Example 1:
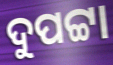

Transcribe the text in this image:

ଦୁପଟ୍ଟା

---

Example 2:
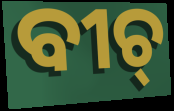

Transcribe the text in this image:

ବୀଚ୍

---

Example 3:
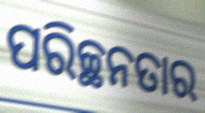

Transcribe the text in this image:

ପରିଚ୍ଛନତାର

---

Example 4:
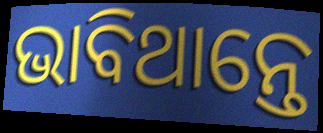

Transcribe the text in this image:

ଭାବିଥାନ୍ତେ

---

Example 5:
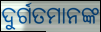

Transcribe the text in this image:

ଦୁର୍ଗତମାନଙ୍କ